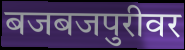
बजबजपुरीवर